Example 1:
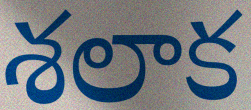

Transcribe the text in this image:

శలాక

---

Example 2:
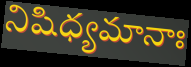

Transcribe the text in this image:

నిషిధ్యమానాః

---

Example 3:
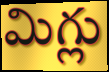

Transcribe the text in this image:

మిగ్లు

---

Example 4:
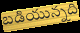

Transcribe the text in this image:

బడియున్నది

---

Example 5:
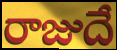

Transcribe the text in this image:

రాజుదే